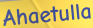
Ahaetulla